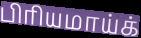
பிரியமாய்க்